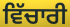
ਵਿੱਚਾਰੀ